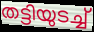
തട്ടിയുടച്ച്